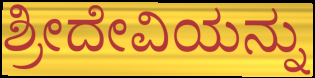
ಶ್ರೀದೇವಿಯನ್ನು